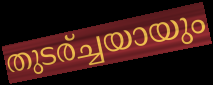
തുടര്ച്ചയായും